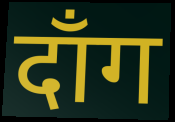
दाँग